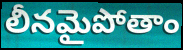
లీనమైపోతాం